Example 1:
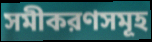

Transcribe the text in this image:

সমীকরণসমূহ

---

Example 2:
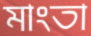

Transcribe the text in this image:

মাংতা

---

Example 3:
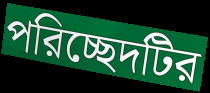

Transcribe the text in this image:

পরিচ্ছেদটির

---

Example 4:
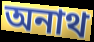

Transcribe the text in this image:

অনাথ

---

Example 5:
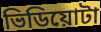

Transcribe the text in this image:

ভিডিয়োটা